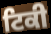
ਟਿਕੀ